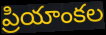
ప్రియాంకల